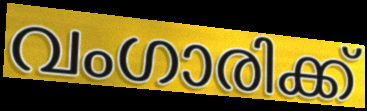
വംഗാരിക്ക്